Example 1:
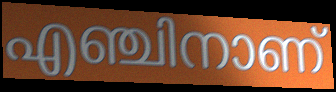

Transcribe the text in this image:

എഞ്ചിനാണ്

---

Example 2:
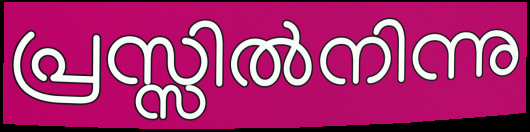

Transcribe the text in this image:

പ്രസ്സിൽനിന്നു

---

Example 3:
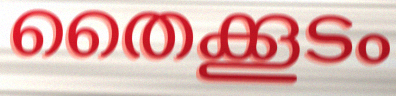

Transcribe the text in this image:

തൈക്കൂടം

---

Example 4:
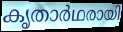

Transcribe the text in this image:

കൃതാർഥരായി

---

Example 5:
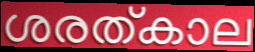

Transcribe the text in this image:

ശരത്കാല